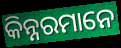
କିନ୍ନରମାନେ